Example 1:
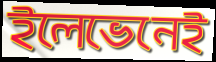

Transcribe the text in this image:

ইলেভেনেই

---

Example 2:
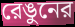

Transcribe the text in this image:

রেঙুনের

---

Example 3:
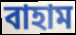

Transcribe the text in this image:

বাহাম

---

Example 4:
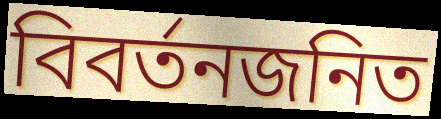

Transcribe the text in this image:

বিবর্তনজনিত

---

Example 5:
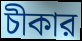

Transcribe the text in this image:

চীকার